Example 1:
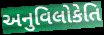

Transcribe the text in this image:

અનુવિલોકેતિ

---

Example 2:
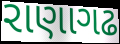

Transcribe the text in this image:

રાણાગઢ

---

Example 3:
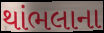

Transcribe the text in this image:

થાંભલાના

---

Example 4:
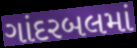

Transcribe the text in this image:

ગાંદરબલમાં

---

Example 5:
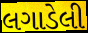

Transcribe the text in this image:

લગાડેલી